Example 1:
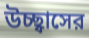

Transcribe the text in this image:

উচ্ছ্বাসের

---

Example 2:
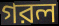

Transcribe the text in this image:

গরল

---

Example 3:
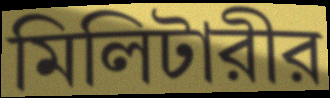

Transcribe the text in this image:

মিলিটারীর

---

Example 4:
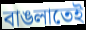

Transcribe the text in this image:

বাঙলাতেই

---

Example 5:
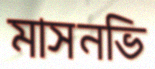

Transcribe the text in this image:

মাসনভি